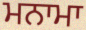
ਮਨਾਮਾ